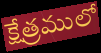
క్షేత్రములో